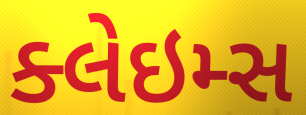
ક્લેઇમ્સ